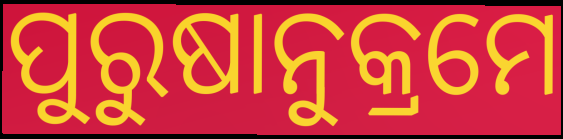
ପୁରୁଷାନୁକ୍ରମେ